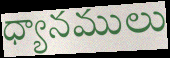
ధ్యానములు